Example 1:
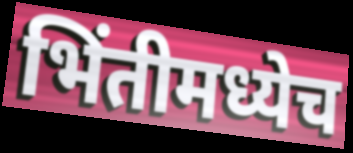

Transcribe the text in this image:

भिंतीमध्येच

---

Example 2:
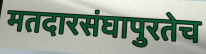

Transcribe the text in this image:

मतदारसंघापुरतेच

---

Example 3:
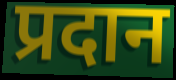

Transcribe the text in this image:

प्रदान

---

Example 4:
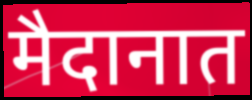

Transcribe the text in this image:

मैदानात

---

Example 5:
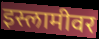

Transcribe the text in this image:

इस्लामीवर